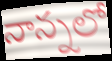
నాన్నలో